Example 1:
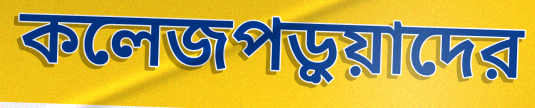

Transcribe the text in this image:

কলেজপড়ুয়াদের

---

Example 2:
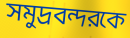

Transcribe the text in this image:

সমুদ্রবন্দরকে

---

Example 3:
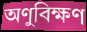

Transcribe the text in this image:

অণুবিক্ষণ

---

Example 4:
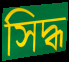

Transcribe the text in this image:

সিদ্ধ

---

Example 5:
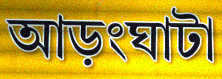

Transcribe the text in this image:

আড়ংঘাটা